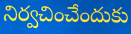
నిర్వచించేందుకు